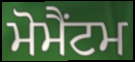
ਮੋਮੈਂਟਮ